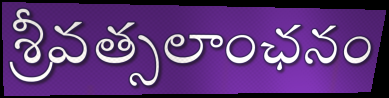
శ్రీవత్సలాంఛనం